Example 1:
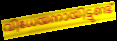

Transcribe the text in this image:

വിധേയനായിട്ടുണ്ട്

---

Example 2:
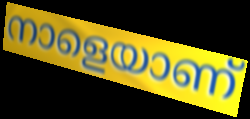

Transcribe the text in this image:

നാളെയാണ്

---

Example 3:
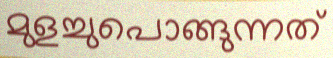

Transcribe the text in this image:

മുളച്ചുപൊങ്ങുന്നത്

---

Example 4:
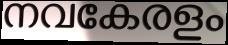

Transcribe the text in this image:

നവകേരളം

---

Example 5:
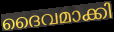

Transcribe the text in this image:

ദൈവമാക്കി